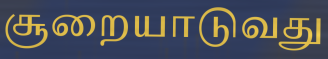
சூறையாடுவது